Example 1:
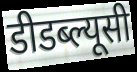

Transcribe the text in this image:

डीडब्ल्यूसी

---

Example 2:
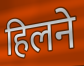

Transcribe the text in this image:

हिलने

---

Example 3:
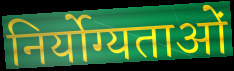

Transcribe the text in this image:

निर्योग्यताओं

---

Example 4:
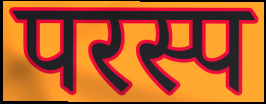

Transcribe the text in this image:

परस्प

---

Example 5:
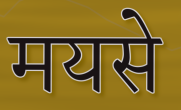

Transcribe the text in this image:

मयसे